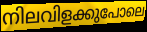
നിലവിളക്കുപോലെ